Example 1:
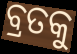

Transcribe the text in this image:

ବ୍ରତକୁ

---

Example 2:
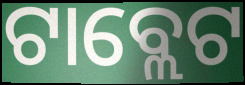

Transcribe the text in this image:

ଟାବ୍ଲେଟ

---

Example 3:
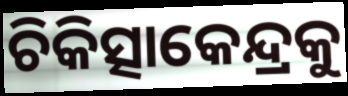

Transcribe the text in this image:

ଚିକିତ୍ସାକେନ୍ଦ୍ରକୁ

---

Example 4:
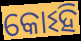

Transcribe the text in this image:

କୋଽହି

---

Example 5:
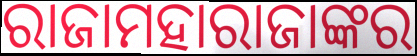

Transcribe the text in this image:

ରାଜାମହାରାଜାଙ୍କର